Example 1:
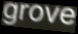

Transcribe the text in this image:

grove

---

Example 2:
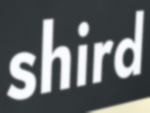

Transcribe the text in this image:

shird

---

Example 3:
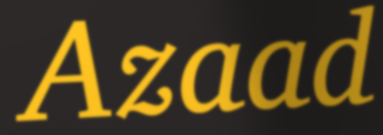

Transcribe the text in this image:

Azaad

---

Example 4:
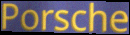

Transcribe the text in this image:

Porsche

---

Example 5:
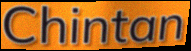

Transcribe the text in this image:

Chintan